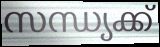
സന്ധ്യക്ക്